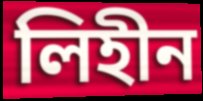
লিহীন